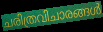
ചരിത്രവിചാരങ്ങൾ